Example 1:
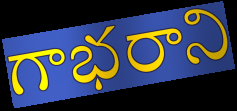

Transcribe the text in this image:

గాభరాని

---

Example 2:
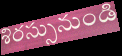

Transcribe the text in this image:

శిరస్సునుండి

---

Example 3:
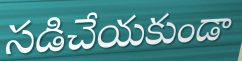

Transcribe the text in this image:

సడిచేయకుండా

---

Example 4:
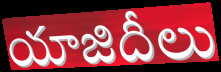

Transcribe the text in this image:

యాజిదీలు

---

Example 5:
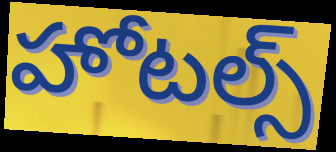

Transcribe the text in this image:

హోటల్స్